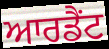
ਆਰਡੈਂਟ